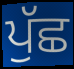
ਪੁੱਛ